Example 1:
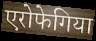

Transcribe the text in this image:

एरोफेगिया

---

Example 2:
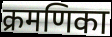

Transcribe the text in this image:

क्रमणिका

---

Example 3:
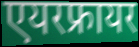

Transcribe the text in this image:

एयरफ्रायर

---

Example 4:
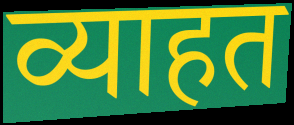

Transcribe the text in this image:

व्याहत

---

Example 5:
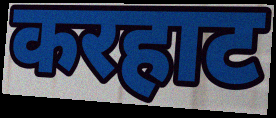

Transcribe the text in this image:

करहाट